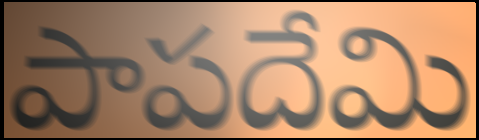
పాపదేమి